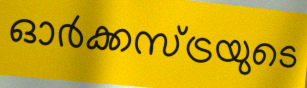
ഓർക്കസ്ട്രയുടെ